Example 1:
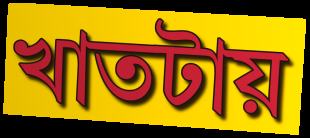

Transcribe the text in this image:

খাতটায়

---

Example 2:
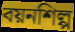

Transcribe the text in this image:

বয়নশিল্প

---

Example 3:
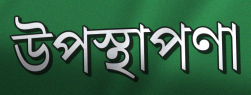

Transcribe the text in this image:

উপস্থাপণা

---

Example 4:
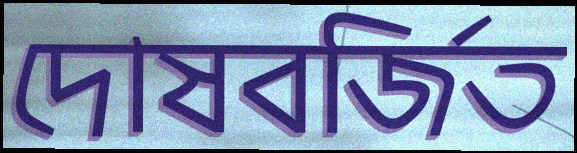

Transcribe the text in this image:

দোষবর্জিত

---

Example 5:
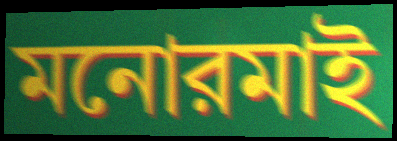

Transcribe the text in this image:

মনোরমাই